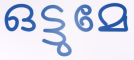
ഒട്ടുമേ